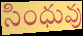
సింధువు